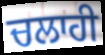
ਚਲਾਹੀ